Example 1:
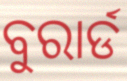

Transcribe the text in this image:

ବୁରାର୍ଡ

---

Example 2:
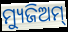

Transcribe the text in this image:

ମ୍ୟୁଜିଅମ୍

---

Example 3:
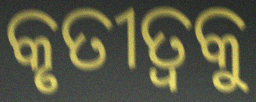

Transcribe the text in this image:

କୃତୀତ୍ଵକୁ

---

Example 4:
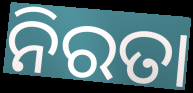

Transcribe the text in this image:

ନିରତା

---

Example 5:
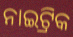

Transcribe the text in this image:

ନାଇଟ୍ରିକ